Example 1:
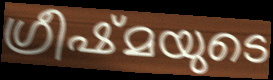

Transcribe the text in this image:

ഗ്രീഷ്മയുടെ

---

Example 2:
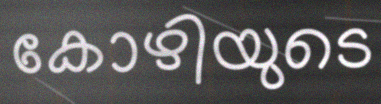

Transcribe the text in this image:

കോഴിയുടെ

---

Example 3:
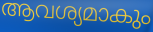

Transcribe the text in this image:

ആവശ്യമാകും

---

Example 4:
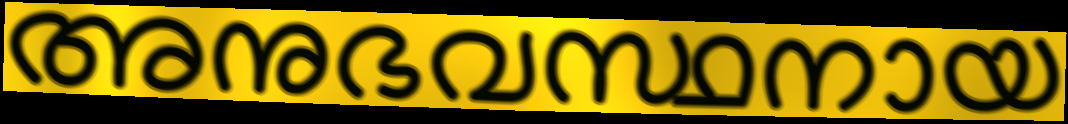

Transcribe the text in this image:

അനുഭവസ്ഥനായ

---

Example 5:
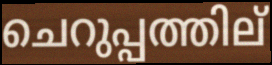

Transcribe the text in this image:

ചെറുപ്പത്തില്